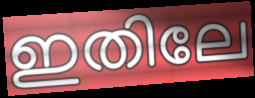
ഇതിലേ